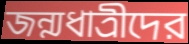
জন্মধাত্রীদের